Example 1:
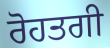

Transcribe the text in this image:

ਰੋਹਤਗੀ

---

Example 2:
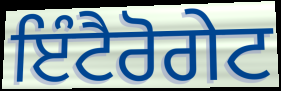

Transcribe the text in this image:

ਇੰਟੈਰੋਗੇਟ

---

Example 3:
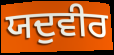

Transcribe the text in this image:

ਯਦੁਵੀਰ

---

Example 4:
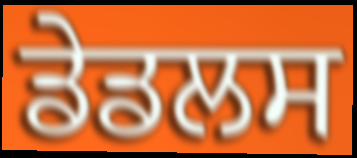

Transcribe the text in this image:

ਡੇਡਲਸ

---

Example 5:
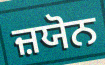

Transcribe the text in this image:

ਜ਼ਯੋਨ